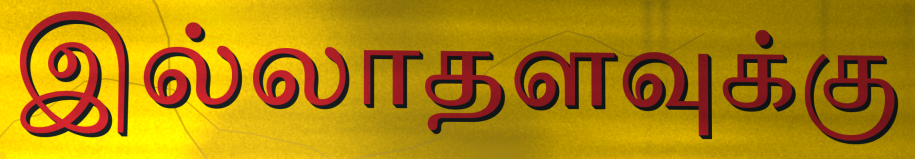
இல்லாதளவுக்கு